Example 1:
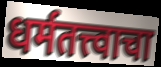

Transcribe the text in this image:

धर्मतत्त्वाचा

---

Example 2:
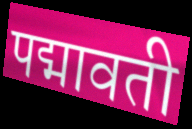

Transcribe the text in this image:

पद्मावती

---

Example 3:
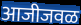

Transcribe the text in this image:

आजीजवळ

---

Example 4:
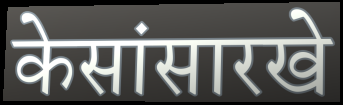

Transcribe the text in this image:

केसांसारखे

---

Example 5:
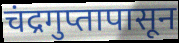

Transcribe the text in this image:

चंद्रगुप्तापासून